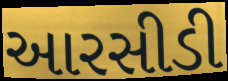
આરસીડી